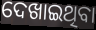
ଦେଖାଇଥିବା